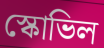
স্কোভিল